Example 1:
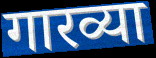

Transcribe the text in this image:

गारव्या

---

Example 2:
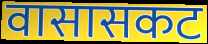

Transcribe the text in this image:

वासासकट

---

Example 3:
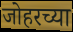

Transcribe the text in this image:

जोहरच्या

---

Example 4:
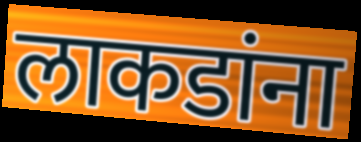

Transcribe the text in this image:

लाकडांना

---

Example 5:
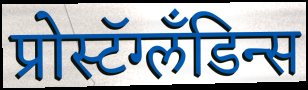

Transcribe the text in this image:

प्रोस्टॅग्लॅंडिन्स